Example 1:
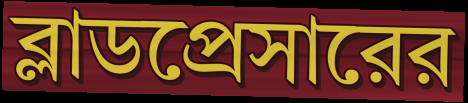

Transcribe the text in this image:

ব্লাডপ্রেসারের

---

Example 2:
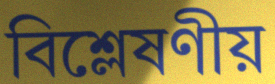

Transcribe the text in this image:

বিশ্লেষণীয়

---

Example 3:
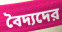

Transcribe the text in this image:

বৈদ্যদের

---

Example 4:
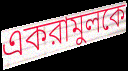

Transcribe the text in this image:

একরামুলকে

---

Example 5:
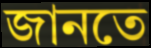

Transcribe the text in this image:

জানতে